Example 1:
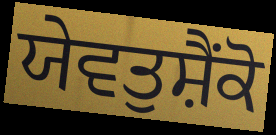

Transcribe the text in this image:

ਯੇਵਤੁਸ਼ੈਂਕੋ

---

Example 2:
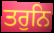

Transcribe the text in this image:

ਤਰੁਨਿ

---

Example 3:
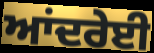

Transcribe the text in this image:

ਆਂਦਰੇਈ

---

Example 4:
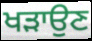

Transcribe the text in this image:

ਖੜਾਉਣ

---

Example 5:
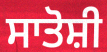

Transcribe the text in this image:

ਸਾਤੋਸ਼ੀ